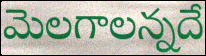
మెలగాలన్నదే